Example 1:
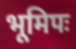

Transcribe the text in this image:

भूमिपः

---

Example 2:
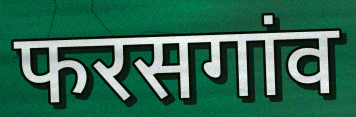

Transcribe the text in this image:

फरसगांव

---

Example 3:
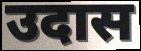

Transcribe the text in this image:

उदास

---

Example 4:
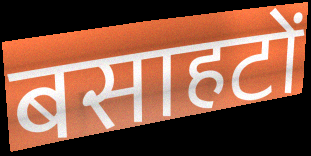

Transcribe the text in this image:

बसाहटों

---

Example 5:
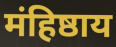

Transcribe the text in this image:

मंहिष्ठाय